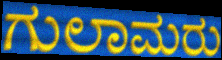
ಗುಲಾಮರು